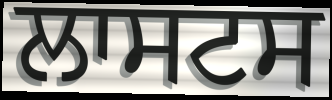
ਲਾਸਟਸ